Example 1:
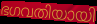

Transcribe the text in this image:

ഭഗവതിയായി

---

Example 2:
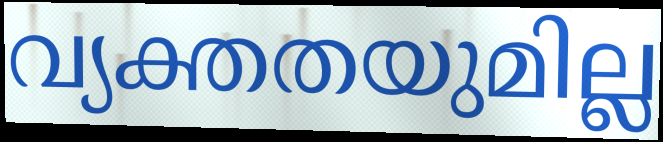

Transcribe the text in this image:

വ്യക്തതയുമില്ല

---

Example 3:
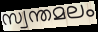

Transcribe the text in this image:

സ്വന്തമലം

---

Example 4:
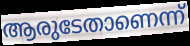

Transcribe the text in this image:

ആരുടേതാണെന്ന്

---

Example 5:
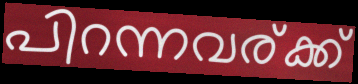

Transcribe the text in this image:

പിറന്നവര്ക്ക്